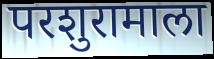
परशुरामाला